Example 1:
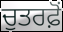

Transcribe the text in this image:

ਚੁਤਰਫ਼ੋਂ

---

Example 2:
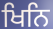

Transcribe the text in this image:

ਖਿਨਿ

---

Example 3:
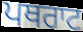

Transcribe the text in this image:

ਪਥਰਾਟ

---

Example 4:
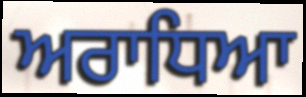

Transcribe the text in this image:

ਅਰਾਧਿਆ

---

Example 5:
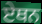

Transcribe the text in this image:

ਏਥਨ